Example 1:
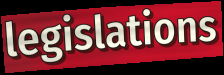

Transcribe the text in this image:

legislations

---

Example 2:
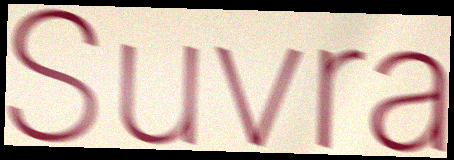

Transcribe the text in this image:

Suvra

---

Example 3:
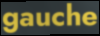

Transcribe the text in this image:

gauche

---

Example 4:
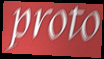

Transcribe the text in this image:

proto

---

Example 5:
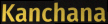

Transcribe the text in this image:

Kanchana